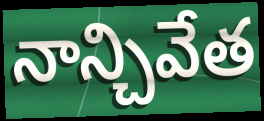
నాన్చివేత